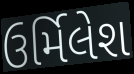
ઉર્મિલેશ